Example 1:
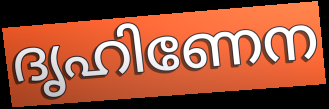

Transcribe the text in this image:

ദൃഹിണേന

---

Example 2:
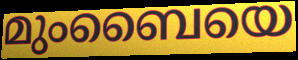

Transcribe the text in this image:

മുംബൈയെ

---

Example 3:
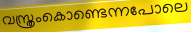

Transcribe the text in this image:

വസ്ത്രംകൊണ്ടെന്നപോലെ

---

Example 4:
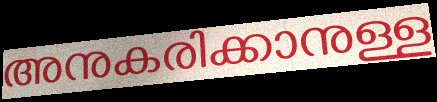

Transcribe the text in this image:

അനുകരിക്കാനുള്ള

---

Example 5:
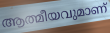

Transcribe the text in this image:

ആത്മീയവുമാണ്